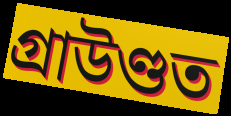
গ্ৰাউণ্ডত